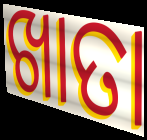
ଖାତା